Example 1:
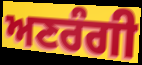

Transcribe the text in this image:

ਅਣਰੰਗੀ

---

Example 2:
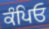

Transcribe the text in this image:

ਕੰਪਿਓ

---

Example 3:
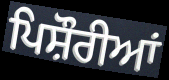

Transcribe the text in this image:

ਪਿਸ਼ੌਰੀਆਂ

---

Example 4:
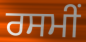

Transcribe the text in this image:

ਰਸਮੀਂ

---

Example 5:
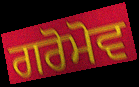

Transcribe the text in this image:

ਗਰੋਮੋਵ